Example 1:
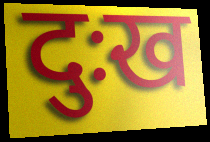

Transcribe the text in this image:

दुःख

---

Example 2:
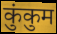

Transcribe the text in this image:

कुंकुम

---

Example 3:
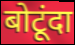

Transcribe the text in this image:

बोटूंदा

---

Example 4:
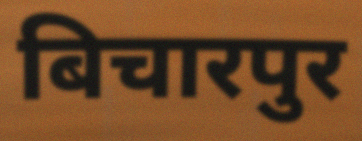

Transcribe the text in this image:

बिचारपुर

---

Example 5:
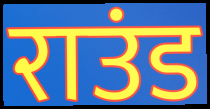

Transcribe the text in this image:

राउंड